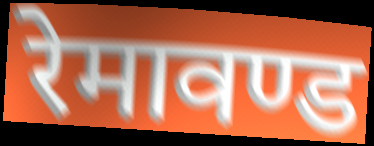
रेमावण्ड